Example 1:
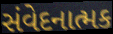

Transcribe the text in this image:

સંવેદનાત્મક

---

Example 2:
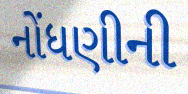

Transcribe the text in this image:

નોંધણીની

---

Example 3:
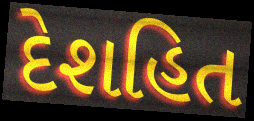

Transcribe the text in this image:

દેશહિત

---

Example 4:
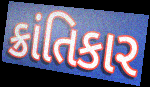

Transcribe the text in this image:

ક્રાંતિકાર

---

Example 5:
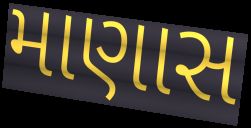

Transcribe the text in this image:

માણાસ